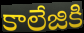
కాలేజికి